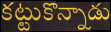
కట్టుకొన్నాడు